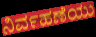
ನಿರ್ವಹಣೆಯು